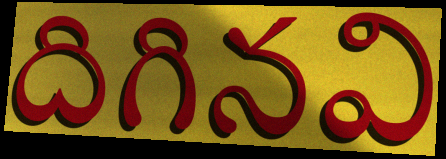
దిగినవి